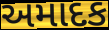
અમાદક